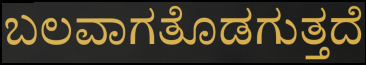
ಬಲವಾಗತೊಡಗುತ್ತದೆ